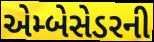
એમ્બેસેડરની